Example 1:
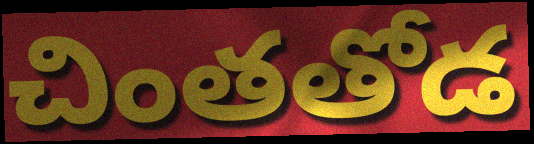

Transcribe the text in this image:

చింతతోడ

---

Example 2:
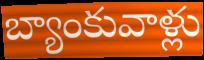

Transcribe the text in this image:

బ్యాంకువాళ్లు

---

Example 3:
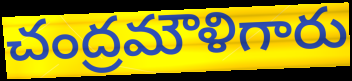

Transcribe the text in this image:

చంద్రమౌళిగారు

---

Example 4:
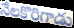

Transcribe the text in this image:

నేలకొరిగాడు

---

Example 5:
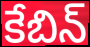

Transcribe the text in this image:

కేబిన్